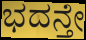
ಭದನ್ತೇ